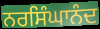
ਨਰਸਿੰਘਾਨੰਦ